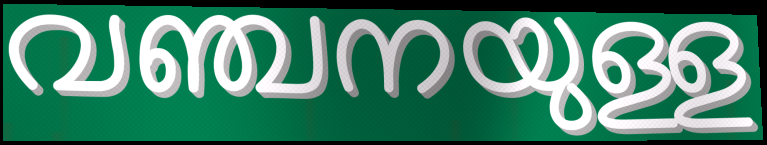
വഞ്ചനയുള്ള